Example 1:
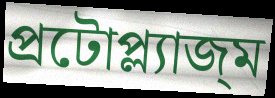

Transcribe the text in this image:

প্রটোপ্ল্যাজ্ম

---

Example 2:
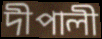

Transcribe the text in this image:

দীপালী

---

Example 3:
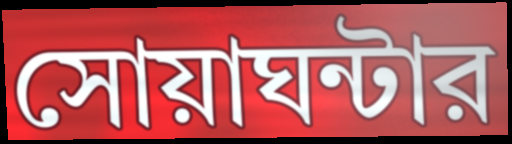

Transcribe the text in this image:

সোয়াঘন্টার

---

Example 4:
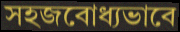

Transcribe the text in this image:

সহজবোধ্যভাবে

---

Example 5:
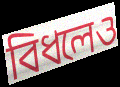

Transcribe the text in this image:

বিধলেও